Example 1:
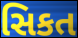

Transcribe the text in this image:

સિકત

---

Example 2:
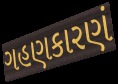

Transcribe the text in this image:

ગહણકારણં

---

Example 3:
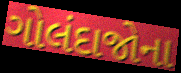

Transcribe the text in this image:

ગોલંદાજોના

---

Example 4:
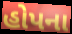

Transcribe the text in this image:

હોપના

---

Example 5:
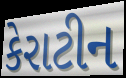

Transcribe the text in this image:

કેરાટીન